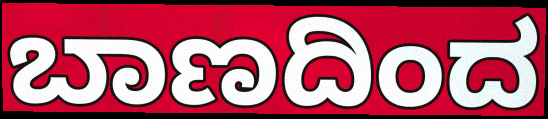
ಬಾಣದಿಂದ